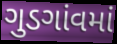
ગુડગાંવમાં